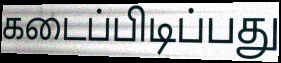
கடைப்பிடிப்பது